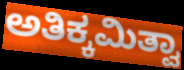
ಅತಿಕ್ಕಮಿತ್ವಾ